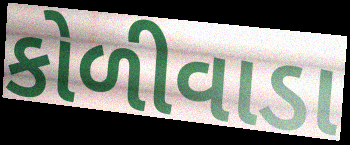
કોળીવાડા